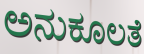
ಅನುಕೂಲತೆ